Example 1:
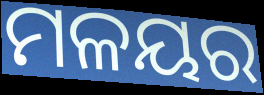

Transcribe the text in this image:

ମଳୟର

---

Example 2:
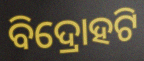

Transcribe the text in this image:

ବିଦ୍ରୋହଟି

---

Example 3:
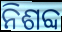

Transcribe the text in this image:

ନିଶବ୍ଦ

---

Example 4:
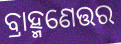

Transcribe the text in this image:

ବ୍ରାହ୍ମଣେତ୍ତର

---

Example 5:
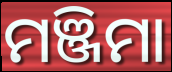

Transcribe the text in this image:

ମଞ୍ଜିମା